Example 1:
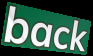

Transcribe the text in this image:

back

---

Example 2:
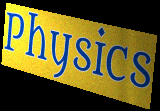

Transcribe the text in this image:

Physics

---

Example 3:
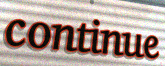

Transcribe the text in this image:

continue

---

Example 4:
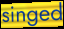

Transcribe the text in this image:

singed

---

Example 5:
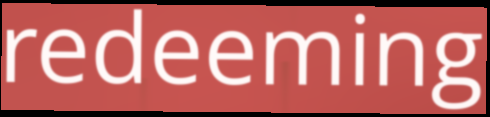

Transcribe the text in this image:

redeeming